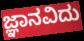
ಜ್ಞಾನವಿದು